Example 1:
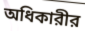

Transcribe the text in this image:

অধিকারীর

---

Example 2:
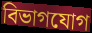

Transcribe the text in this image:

বিভাগযোগ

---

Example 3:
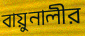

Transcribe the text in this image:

বায়ুনালীর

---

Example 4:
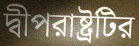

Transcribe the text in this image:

দ্বীপরাষ্ট্রটির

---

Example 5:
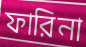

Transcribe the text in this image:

ফারিনা